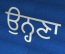
ਉਨ੍ਹਣਾ